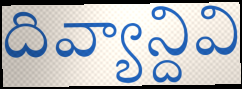
దివ్యాన్దివి